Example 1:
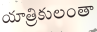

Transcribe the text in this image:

యాత్రికులంతా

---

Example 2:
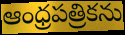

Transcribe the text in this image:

ఆంధ్రపత్రికను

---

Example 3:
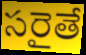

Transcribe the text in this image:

సరైతే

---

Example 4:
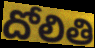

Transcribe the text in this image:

దోలితి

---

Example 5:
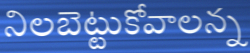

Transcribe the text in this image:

నిలబెట్టుకోవాలన్న